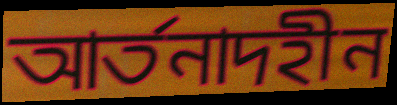
আর্তনাদহীন